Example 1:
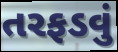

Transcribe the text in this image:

તરફડવું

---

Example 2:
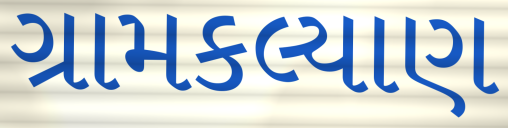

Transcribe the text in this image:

ગ્રામકલ્યાણ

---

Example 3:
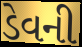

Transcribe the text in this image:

ડેવની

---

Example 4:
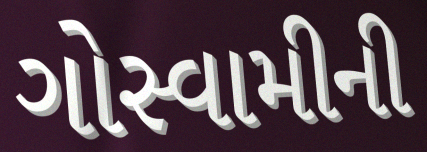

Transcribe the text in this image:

ગોસ્વામીની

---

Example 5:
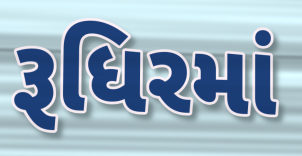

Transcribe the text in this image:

રૂધિરમાં